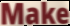
Make